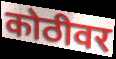
कोठीवर